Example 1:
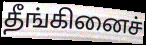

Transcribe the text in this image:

தீங்கினைச்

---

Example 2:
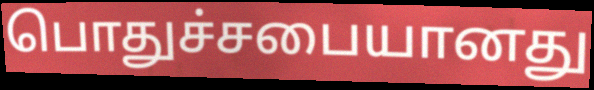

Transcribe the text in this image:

பொதுச்சபையானது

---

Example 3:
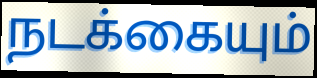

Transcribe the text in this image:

நடக்கையும்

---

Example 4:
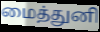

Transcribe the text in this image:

மைத்துனி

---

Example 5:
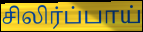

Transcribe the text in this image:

சிலிர்ப்பாய்